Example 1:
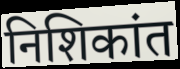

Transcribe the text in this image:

निशिकांत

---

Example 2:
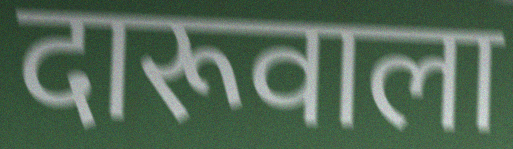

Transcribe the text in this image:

दारूवाला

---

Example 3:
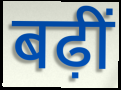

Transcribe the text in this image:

बढ़ीं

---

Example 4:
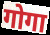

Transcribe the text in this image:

गोगा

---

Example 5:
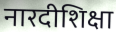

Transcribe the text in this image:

नारदीशिक्षा